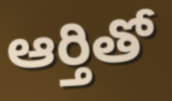
ఆర్తితో